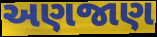
અણજાણ